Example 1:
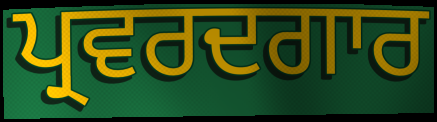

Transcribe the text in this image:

ਪ੍ਰਵਰਦਗਾਰ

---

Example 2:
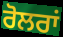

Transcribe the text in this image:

ਰੋਲਰਾਂ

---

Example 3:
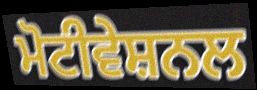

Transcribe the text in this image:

ਮੋਟੀਵੇਸ਼ਨਲ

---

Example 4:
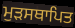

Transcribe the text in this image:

ਮੁੜਸਥਾਪਿਤ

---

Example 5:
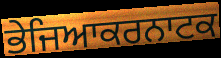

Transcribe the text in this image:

ਭੇਜਿਆਕਰਨਾਟਕ